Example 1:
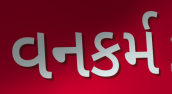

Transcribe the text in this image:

વનકર્મ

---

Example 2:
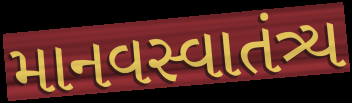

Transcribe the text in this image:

માનવસ્વાતંત્ર્ય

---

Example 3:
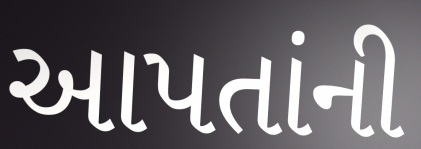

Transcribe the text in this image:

આપતાંની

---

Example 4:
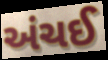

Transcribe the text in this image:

અંચઈ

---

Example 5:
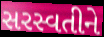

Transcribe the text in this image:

સરસ્વતીને